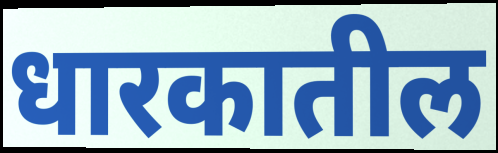
धारकातील